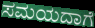
ಸಮಯದಾಗೆ